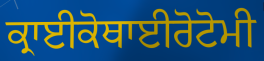
ਕ੍ਰਾਈਕੋਥਾਈਰੋਟੋਮੀ